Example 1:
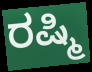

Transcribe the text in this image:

ರಷ್ಮಿ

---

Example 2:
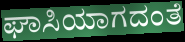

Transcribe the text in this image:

ಘಾಸಿಯಾಗದಂತೆ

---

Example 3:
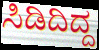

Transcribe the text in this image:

ಸಿಡಿದಿದ್ದ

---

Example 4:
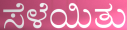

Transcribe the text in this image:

ಸೆಳೆಯಿತು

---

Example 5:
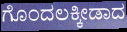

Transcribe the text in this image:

ಗೊಂದಲಕ್ಕೀಡಾದ